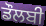
ਡੌਲਬੀ